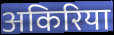
अकिरिया